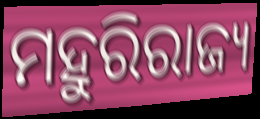
ମହୁରିରାଜ୍ୟ